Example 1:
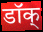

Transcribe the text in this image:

डॉक्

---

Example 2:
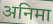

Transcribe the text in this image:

अनिमा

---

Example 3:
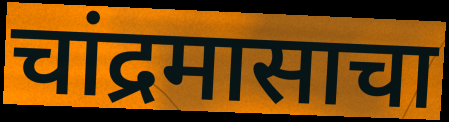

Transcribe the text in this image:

चांद्रमासाचा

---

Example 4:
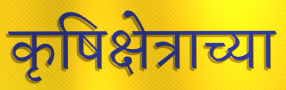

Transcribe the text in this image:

कृषिक्षेत्राच्या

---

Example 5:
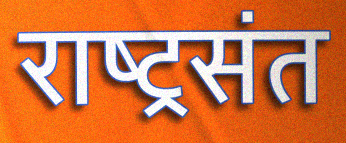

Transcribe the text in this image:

राष्ट्रसंत